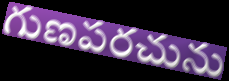
గుణపరచును